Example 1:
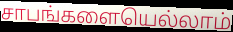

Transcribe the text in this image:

சாபங்களையெல்லாம்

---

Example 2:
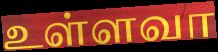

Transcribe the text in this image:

உள்ளவா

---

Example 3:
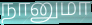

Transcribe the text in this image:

நானுமா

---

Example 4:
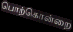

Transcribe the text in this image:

பொற்கொன்றை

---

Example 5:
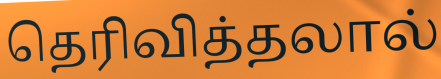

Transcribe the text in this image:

தெரிவித்தலால்